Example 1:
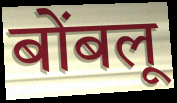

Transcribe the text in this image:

बोंबलू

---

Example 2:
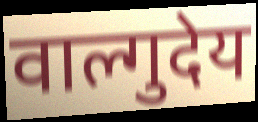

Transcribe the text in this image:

वाल्गुदेय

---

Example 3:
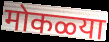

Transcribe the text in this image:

मोकळ्या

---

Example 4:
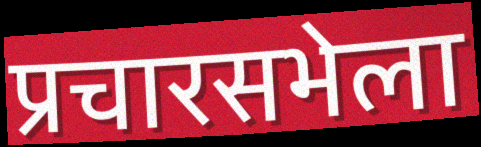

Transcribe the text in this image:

प्रचारसभेला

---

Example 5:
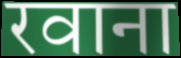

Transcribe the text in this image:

रवाना